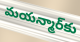
మయన్మార్‌కు